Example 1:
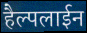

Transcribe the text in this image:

हैल्पलाईन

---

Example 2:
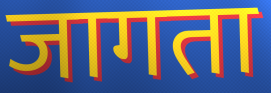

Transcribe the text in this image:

जागता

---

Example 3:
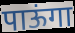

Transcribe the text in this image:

पाऊंगा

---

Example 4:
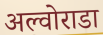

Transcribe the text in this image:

अल्वोराडा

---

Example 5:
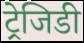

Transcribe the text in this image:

ट्रेजिडी